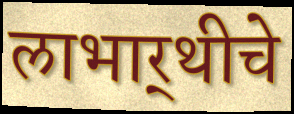
लाभार्थीचे